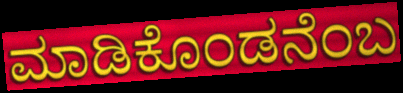
ಮಾಡಿಕೊಂಡನೆಂಬ